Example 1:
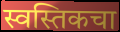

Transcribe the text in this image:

स्वस्तिकचा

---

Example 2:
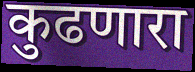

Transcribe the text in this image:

कुढणारा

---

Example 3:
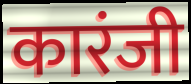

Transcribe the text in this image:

कारंजी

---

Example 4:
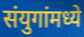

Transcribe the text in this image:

संयुगांमध्ये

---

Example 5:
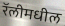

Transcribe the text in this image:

रॅलीमधील